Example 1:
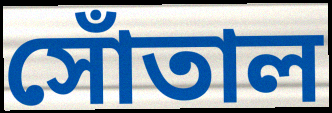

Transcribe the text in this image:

সোঁতাল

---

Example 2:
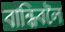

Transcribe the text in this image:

বান্ধিবলৈ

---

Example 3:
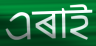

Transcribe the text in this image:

এৰাই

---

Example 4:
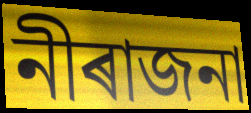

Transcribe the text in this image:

নীৰাজনা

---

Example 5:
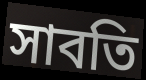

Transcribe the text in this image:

সাবতি